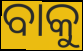
ବାକୁ